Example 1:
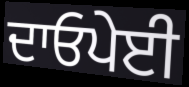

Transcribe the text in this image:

ਦਾਓਪੇਈ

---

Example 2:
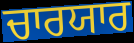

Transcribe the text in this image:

ਚਾਰਯਾਰ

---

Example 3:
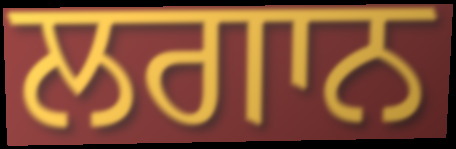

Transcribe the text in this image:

ਲਗਾਨ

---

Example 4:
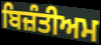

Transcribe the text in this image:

ਬਿਜ਼ੰਤੀਅਮ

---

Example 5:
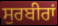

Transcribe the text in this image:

ਸੁਰਬੀਰਾਂ